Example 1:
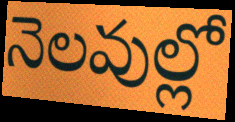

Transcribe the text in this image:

నెలవుల్లో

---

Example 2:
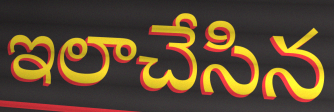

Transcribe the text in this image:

ఇలాచేసిన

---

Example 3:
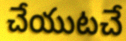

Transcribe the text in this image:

చేయుటచే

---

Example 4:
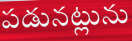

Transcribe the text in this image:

పడునట్లును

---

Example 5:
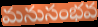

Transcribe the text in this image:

మనుసంభవ